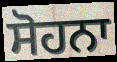
ਸੋਹਨਾ